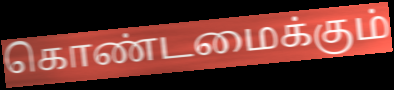
கொண்டமைக்கும்